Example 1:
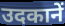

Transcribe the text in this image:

उदकानें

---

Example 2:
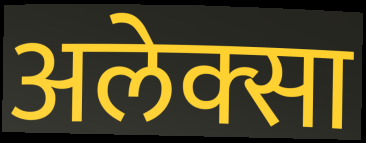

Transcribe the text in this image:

अलेक्‍सा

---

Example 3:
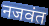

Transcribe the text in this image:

नजवंत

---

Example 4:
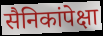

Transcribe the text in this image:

सैनिकांपेक्षा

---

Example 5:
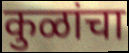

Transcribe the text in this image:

कुळांचा